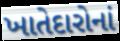
ખાતેદારોનાં